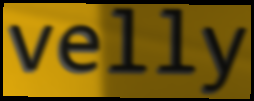
velly